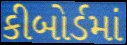
કીબોર્ડમાં